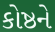
કોષ્ઠને